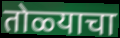
तोळ्याचा